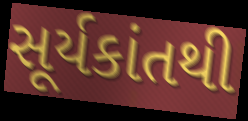
સૂર્યકાંતથી